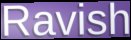
Ravish